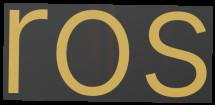
ros